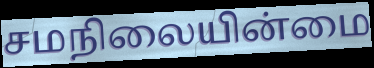
சமநிலையின்மை